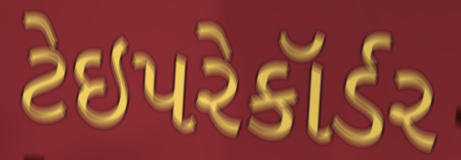
ટેઇપરેકૉર્ડર